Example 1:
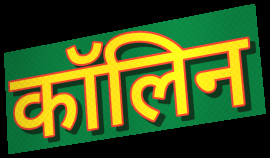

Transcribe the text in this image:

कॉलिन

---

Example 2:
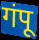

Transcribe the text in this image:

गंपू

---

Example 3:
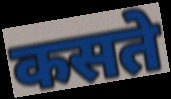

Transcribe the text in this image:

कसते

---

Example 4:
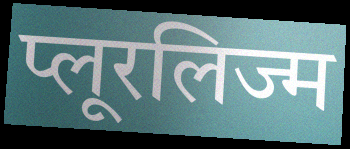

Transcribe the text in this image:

प्लूरलिज्म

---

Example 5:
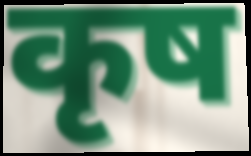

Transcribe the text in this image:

कृष